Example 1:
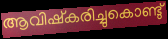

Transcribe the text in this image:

ആവിഷ്കരിച്ചുകൊണ്ടു്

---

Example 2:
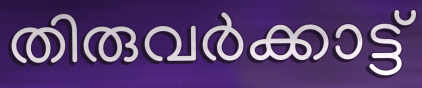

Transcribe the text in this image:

തിരുവർക്കാട്ട്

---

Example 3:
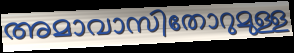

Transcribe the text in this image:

അമാവാസിതോറുമുള്ള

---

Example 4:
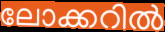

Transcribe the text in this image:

ലോക്കറിൽ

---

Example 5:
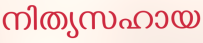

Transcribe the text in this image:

നിത്യസഹായ